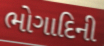
ભોગાદિની